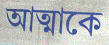
আত্মাকে